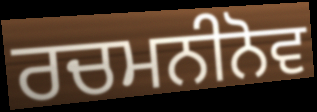
ਰਚਮਨੀਨੋਵ